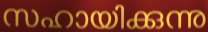
സഹായിക്കുന്നു